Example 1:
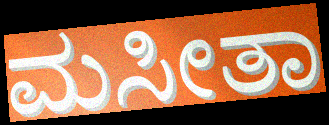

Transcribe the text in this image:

ಮಸೀತಾ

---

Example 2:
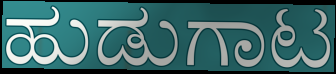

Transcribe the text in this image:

ಹುಡುಗಾಟ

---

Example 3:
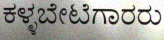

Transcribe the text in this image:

ಕಳ್ಳಬೇಟೆಗಾರರು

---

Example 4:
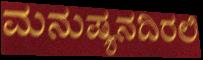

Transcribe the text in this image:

ಮನುಷ್ಯನದಿರಲಿ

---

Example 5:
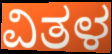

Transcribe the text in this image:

ವಿತಳ